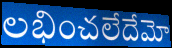
లభించలేదేమో